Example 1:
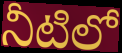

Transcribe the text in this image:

నీటిలో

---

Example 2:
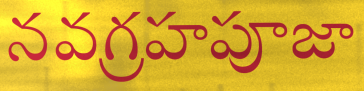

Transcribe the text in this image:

నవగ్రహపూజా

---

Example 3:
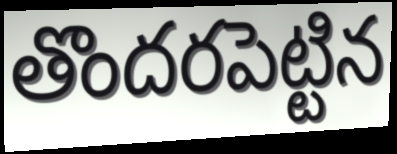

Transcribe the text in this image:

తొందరపెట్టిన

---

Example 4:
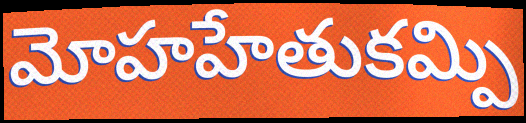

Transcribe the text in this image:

మోహహేతుకమ్పి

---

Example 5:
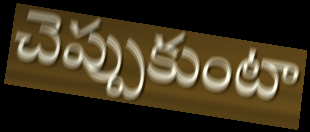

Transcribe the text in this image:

చెప్పుకుంటా